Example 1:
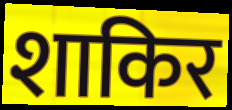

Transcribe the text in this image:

शाकिर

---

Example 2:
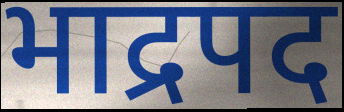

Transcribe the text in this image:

भाद्रपद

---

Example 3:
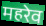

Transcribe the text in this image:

महरेव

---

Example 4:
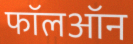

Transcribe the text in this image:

फॉलऑन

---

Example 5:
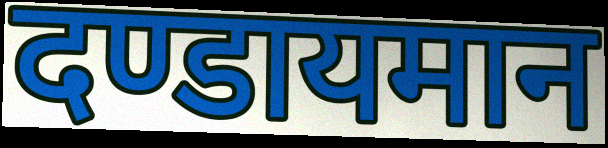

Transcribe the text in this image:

दण्डायमान